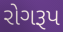
રોગરૂપ